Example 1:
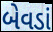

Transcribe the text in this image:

બેવડાં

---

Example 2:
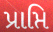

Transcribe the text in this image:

પ્રાપ્તિ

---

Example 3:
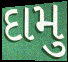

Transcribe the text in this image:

દામુ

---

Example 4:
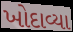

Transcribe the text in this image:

ખોદાવ્યા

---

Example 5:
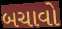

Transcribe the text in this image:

બચાવો